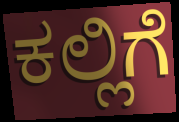
ಕಲ್ಲಿಗೆ